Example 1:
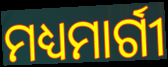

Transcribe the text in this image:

ମଧ୍ୟମାର୍ଗୀ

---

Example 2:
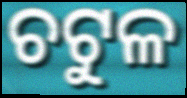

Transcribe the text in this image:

ଚଟୁଳ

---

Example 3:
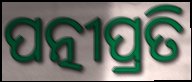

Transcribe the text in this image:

ପତ୍ନୀପ୍ରତି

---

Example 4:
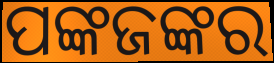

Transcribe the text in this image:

ପଙ୍କଜଙ୍କର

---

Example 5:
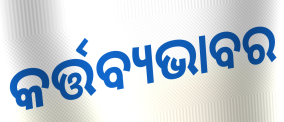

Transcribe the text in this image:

କର୍ତ୍ତବ୍ୟଭାବର